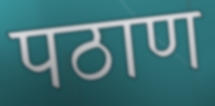
पठाण